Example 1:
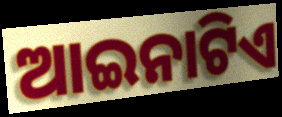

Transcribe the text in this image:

ଆଇନାଟିଏ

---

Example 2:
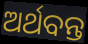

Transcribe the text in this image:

ଅର୍ଥବନ୍ତ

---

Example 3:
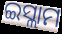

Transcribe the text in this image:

ଇସ୍ଲାମ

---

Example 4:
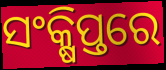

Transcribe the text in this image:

ସଂକ୍ଷିପ୍ତରେ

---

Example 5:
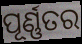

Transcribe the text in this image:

ପୂର୍ଣ୍ଣତର